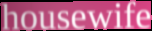
housewife